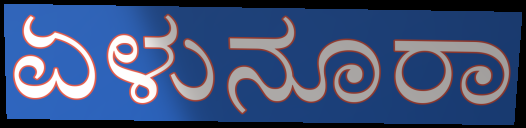
ಏಳುನೂರಾ